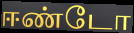
ஈண்டோ